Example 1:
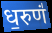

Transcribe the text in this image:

ध॒रुणं॑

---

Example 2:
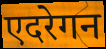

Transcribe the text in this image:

एदरेगन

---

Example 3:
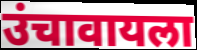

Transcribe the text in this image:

उंचावायला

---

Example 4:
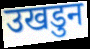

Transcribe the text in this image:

उखडुन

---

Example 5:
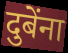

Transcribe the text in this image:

दुबेंना